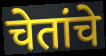
चेतांचे